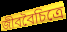
জীববৈচিত্রে